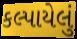
કલ્પાયેલું